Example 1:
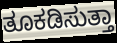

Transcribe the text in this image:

ತೂಕಡಿಸುತ್ತಾ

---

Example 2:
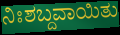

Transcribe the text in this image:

ನಿಃಶಬ್ದವಾಯಿತು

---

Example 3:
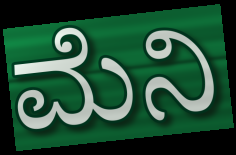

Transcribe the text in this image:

ಮೆನಿ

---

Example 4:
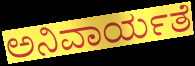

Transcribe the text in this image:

ಅನಿವಾರ್ಯತೆ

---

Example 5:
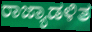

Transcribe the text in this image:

ರಾಜ್ಯಾಡಳಿತ